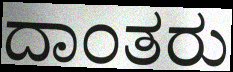
ದಾಂತರು